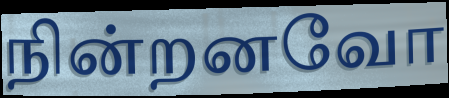
நின்றனவோ